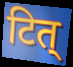
टित्